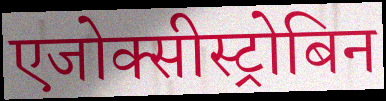
एजोक्सीस्ट्रोबिन